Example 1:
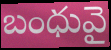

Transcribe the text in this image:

బంధువై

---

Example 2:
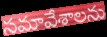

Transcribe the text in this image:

సమావేశాలను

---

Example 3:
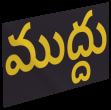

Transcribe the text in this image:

ముద్దు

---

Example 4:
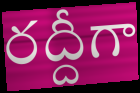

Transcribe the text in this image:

రద్దీగా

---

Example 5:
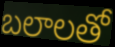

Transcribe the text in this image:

బలాలతో